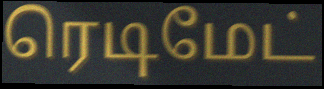
ரெடிமேட்